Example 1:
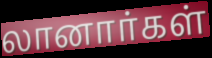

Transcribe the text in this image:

லானார்கள்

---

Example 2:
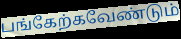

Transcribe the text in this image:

பங்கேற்கவேண்டும்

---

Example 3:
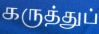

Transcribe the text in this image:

கருத்துப்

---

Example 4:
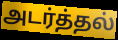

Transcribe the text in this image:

அடர்த்தல்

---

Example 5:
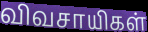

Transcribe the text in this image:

விவசாயிகள்